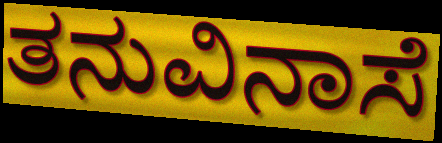
ತನುವಿನಾಸೆ